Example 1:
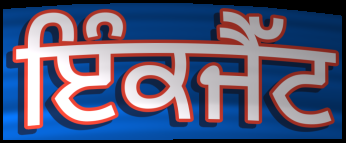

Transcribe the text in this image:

ਇੰਕਜੈੱਟ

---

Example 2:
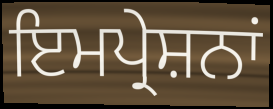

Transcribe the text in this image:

ਇਮਪ੍ਰੇਸ਼ਨਾਂ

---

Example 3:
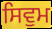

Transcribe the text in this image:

ਸਿਵੁਮ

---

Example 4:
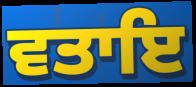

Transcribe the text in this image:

ਵਤਾਇ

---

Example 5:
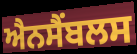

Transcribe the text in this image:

ਐਨਸੈਂਬਲਸ